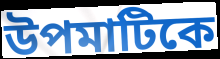
উপমাটিকে